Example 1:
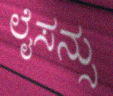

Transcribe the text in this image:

ಲೈಸನ್ಸು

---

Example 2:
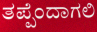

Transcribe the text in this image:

ತಪ್ಪೆಂದಾಗಲಿ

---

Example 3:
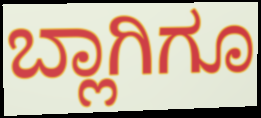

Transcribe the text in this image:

ಬ್ಲಾಗಿಗೂ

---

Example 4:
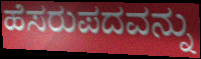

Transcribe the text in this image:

ಹೆಸರುಪದವನ್ನು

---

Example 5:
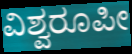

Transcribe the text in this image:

ವಿಶ್ವರೂಪೀ